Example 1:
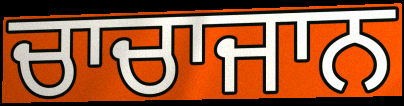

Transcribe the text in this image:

ਚਾਚਾਜਾਨ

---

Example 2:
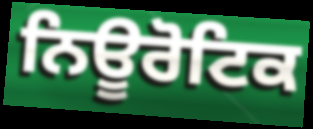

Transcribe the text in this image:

ਨਿਊਰੋਟਿਕ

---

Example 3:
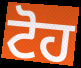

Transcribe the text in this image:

ਟੋਹ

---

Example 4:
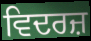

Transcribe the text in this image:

ਵਿਦਰਜ਼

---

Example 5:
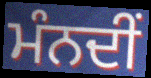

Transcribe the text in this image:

ਮੰਨਦੀਂ